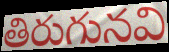
తిరుగునవి